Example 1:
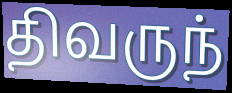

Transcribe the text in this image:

திவருந்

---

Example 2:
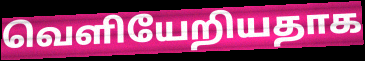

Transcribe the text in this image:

வெளியேறியதாக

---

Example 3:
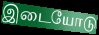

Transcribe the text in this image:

இடையோடு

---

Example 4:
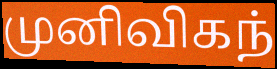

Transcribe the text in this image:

முனிவிகந்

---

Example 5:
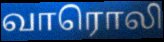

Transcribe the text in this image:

வாரொலி